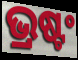
ଭ୍ରଷ୍ଟଂ